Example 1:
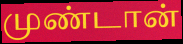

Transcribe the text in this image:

முண்டான்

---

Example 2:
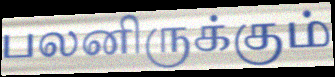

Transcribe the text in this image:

பலனிருக்கும்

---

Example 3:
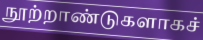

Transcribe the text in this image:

நூற்றாண்டுகளாகச்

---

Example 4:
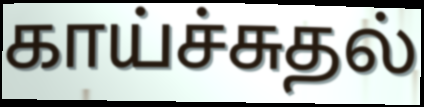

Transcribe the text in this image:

காய்ச்சுதல்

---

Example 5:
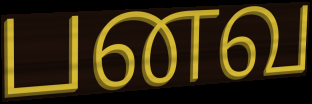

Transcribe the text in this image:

பனவ